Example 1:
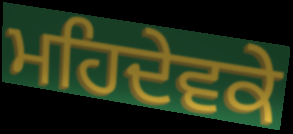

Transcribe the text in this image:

ਮਹਿਦੇਵਕੇ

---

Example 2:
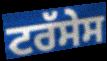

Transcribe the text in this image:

ਟਰੱਸੇਸ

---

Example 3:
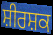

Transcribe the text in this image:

ਸ਼ੀਰਸ਼ਕ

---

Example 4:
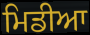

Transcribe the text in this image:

ਮਿਡੀਆ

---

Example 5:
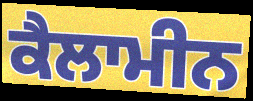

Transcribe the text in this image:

ਕੈਲਾਮੀਨ